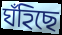
ঘঁহিছে